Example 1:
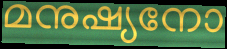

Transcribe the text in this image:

മനുഷ്യനോ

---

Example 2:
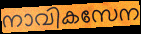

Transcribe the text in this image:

നാവികസേന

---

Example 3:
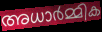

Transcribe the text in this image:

അധാർമ്മിക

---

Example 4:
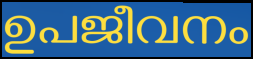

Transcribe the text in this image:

ഉപജീവനം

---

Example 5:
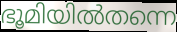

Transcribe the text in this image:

ഭൂമിയിൽതന്നെ